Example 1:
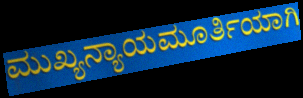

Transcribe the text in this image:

ಮುಖ್ಯನ್ಯಾಯಮೂರ್ತಿಯಾಗಿ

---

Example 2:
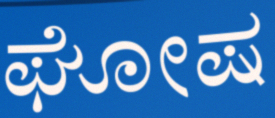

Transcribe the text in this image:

ಘೋಷ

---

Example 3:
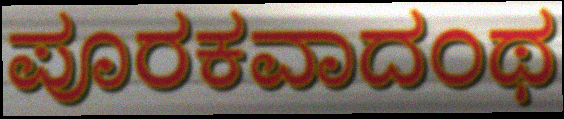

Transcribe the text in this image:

ಪೂರಕವಾದಂಥ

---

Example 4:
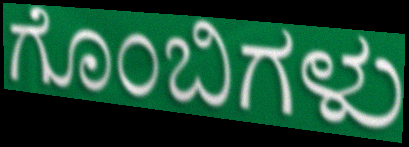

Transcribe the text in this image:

ಗೊಂಬಿಗಳು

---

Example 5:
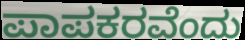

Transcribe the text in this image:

ಪಾಪಕರವೆಂದು